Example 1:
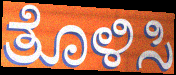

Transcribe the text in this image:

ತೊಳಿಸಿ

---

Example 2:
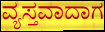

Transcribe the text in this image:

ವ್ಯಸ್ತವಾದಾಗ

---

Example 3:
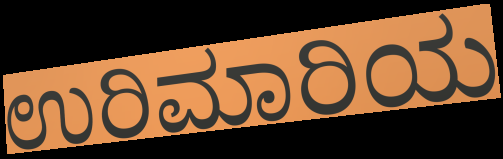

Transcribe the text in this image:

ಉರಿಮಾರಿಯ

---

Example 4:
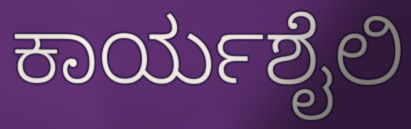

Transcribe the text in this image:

ಕಾರ್ಯಶೈಲಿ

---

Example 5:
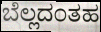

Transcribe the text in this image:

ಬೆಲ್ಲದಂತಹ